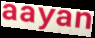
aayan